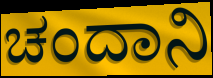
ಚಂದಾನಿ